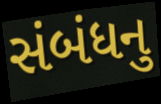
સંબંધનુ